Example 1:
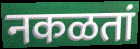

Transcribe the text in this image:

नकळतां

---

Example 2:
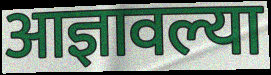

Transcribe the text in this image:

आज्ञावल्या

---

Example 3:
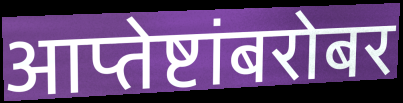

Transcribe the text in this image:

आप्तेष्टांबरोबर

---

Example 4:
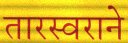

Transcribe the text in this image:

तारस्वराने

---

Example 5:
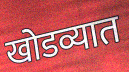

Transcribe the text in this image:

खोडव्यात